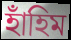
হাঁহিম